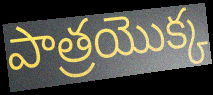
పాత్రయొక్క